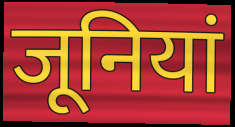
जूनियां